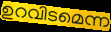
ഉറവിടമെന്ന